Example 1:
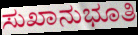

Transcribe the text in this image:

ಸುಖಾನುಭೂತಿ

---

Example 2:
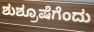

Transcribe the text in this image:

ಶುಶ್ರೂಷೆಗೆಂದು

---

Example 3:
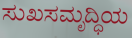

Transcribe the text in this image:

ಸುಖಸಮೃದ್ಧಿಯ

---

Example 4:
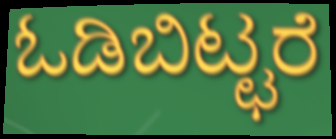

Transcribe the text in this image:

ಓಡಿಬಿಟ್ಟರೆ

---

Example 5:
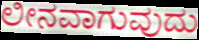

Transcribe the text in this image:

ಲೀನವಾಗುವುದು